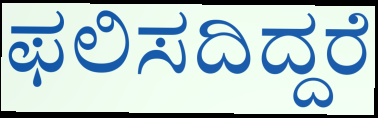
ಫಲಿಸದಿದ್ದರೆ